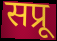
सप्रू